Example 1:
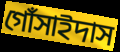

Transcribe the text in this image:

গোঁসাইদাস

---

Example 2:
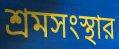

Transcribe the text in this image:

শ্রমসংস্থার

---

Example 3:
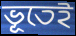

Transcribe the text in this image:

ভূতেই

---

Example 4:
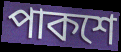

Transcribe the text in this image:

পাকশে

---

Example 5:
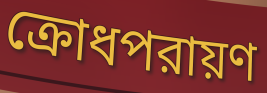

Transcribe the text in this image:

ক্রোধপরায়ণ